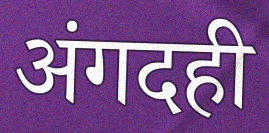
अंगदही